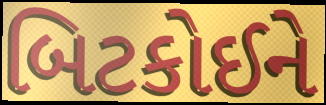
બિટકોઈને